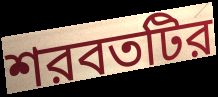
শরবতটির